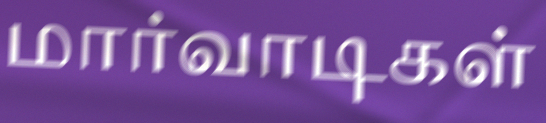
மார்வாடிகள்